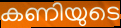
കണിയുടെ